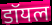
डॉयल